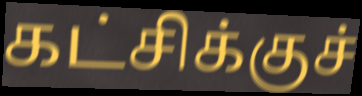
கட்சிக்குச்